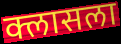
क्लासला